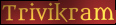
Trivikram